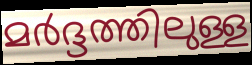
മർദ്ദത്തിലുള്ള